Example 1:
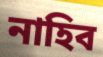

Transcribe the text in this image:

নাহিব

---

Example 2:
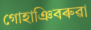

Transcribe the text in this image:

গোহাঞিবৰুৱা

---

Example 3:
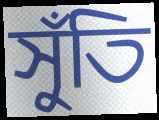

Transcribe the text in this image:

সুঁতি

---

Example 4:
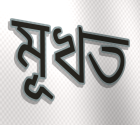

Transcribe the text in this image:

মূখত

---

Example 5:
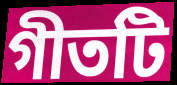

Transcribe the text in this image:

গীতটি